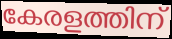
കേരളത്തിന്